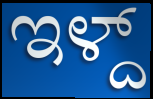
ಇಳ್ದ್